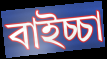
বাইচ্চা